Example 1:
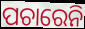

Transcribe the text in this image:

ପଚାରେନି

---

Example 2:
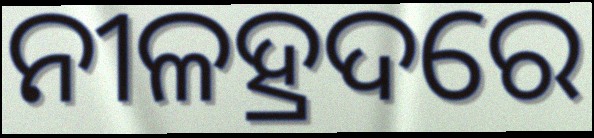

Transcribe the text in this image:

ନୀଳହ୍ରଦରେ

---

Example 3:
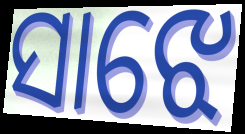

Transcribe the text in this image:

ସାଝେ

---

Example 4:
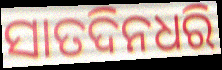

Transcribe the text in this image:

ସାତଦିନଧରି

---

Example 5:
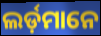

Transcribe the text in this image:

ଲର୍ଡ଼ମାନେ